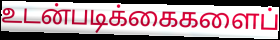
உடன்படிக்கைகளைப்